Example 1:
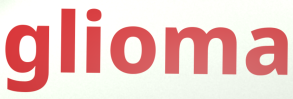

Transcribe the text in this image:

glioma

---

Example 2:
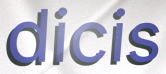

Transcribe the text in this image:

dicis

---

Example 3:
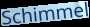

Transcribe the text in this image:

Schimmel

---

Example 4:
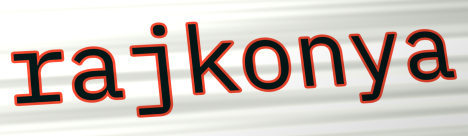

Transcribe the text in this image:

rajkonya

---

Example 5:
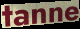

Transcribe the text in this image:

tanne